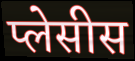
प्लेसीस